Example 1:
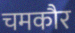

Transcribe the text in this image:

चमकौर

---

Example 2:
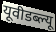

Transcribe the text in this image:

यूवीडब्ल्यू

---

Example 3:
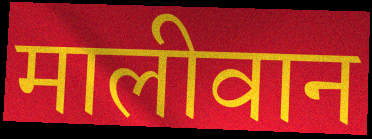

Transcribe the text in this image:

मालीवान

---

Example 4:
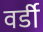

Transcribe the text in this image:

वर्डी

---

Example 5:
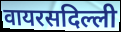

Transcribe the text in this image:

वायरसदिल्ली